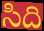
సిది